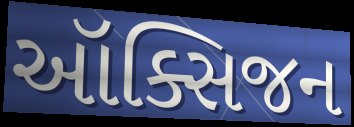
ઑક્સિજન